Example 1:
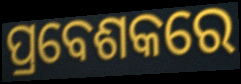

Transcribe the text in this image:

ପ୍ରବେଶକରେ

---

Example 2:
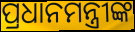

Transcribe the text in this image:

ପ୍ରଧାନମନ୍ତ୍ରୀଙ୍କ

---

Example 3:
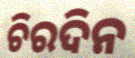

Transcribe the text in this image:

ଚିରଦିନ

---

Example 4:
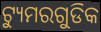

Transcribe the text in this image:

ଟ୍ୟୁମରଗୁଡିକ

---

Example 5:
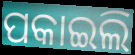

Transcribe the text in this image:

ପକାଇଲି